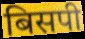
बिसपी